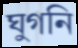
ঘুগনি